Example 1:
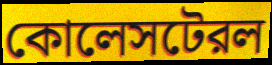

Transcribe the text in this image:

কোলেসটেরল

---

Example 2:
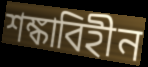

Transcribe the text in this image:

শঙ্কাবিহীন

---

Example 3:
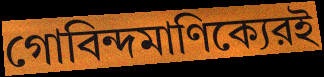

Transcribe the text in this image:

গোবিন্দমাণিক্যেরই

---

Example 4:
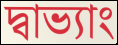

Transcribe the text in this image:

দ্বাভ্যাং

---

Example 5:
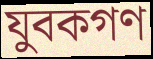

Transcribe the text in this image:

যুবকগণ